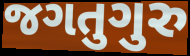
જગતુગુરુ